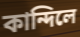
কান্দিলে